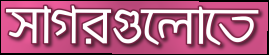
সাগরগুলোতে